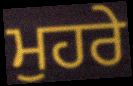
ਮੁਹਰੇ